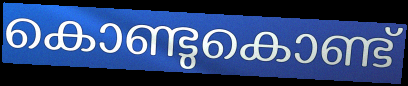
കൊണ്ടുകൊണ്ട്